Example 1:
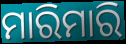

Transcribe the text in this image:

ମାରିମାରି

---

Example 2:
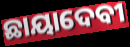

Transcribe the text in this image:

ଛାୟାଦେବୀ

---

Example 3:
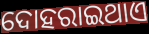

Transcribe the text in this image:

ଦୋହରାଇଥାଏ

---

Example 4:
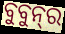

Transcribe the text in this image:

ବୁବୁନ୍‌ର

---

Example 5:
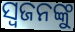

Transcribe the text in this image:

ସ୍ଵଜନଙ୍କୁ